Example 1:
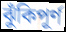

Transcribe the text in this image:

ঝুঁকিপূর্ণ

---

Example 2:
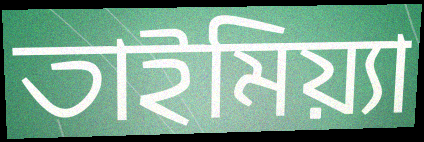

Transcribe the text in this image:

তাইমিয়্যা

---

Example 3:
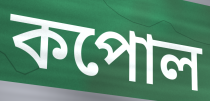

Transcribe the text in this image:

কপোল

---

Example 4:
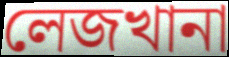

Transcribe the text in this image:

লেজখানা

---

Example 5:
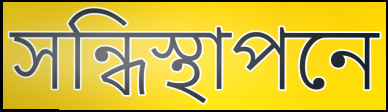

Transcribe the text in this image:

সন্ধিস্থাপনে